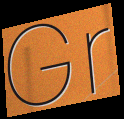
Gr